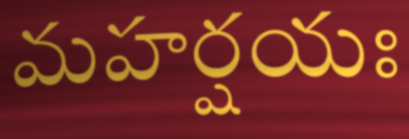
మహర్షయః